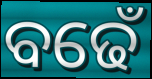
ବଢେଁ